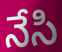
నేసి